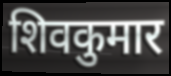
शिवकुमार